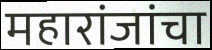
महारांजांचा